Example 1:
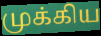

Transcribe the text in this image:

முக்கிய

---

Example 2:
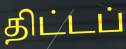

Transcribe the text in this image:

திட்டப்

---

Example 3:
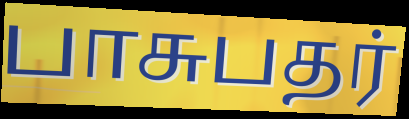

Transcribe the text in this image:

பாசுபதர்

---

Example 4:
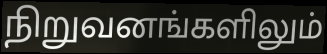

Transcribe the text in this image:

நிறுவனங்களிலும்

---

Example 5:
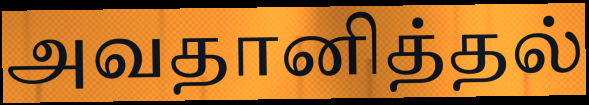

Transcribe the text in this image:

அவதானித்தல்